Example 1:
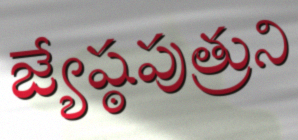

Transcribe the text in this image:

జ్యేష్ఠపుత్రుని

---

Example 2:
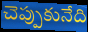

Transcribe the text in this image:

చెప్పుకునేది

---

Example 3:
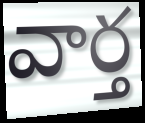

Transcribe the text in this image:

వార్త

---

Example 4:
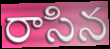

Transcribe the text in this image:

రాసిన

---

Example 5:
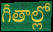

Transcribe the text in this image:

గీతాల్లో